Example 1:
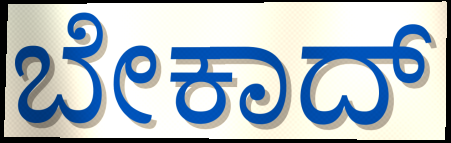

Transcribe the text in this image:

ಬೇಕಾದ್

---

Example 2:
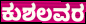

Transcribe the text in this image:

ಕುಶಲವರ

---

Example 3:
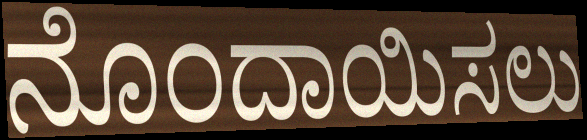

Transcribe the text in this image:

ನೊಂದಾಯಿಸಲು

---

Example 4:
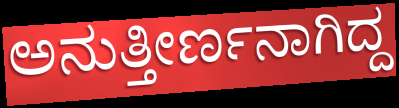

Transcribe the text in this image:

ಅನುತ್ತೀರ್ಣನಾಗಿದ್ದ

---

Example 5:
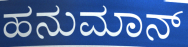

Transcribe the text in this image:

ಹನುಮಾನ್